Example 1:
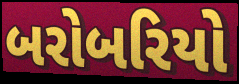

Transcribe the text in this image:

બરોબરિયો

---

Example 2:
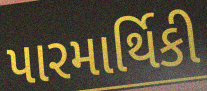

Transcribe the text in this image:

પારમાર્થિકી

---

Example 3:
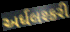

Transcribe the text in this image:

અર્ધલશ્કરી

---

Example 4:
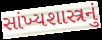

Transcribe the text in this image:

સાંખ્યશાસ્ત્રનું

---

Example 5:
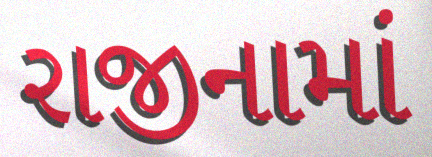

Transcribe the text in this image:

રાજીનામાં